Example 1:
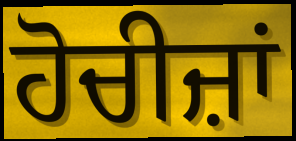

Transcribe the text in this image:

ਹੋਚੀਜ਼ਾਂ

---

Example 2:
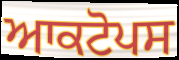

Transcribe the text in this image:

ਆਕਟੋਪਸ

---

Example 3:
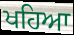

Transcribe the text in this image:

ਖਹਿਆ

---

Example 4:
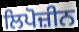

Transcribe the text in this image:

ਲਿਪੋਜ਼ੀਨ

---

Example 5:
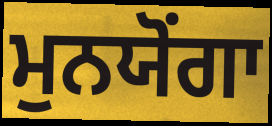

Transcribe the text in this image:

ਮੁਨਯੋਂਗਾ